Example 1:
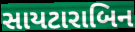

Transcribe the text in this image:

સાયટારાબિન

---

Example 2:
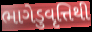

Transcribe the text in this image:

ભાગેડુવૃત્તિથી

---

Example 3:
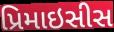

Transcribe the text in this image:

પ્રિમાઇસીસ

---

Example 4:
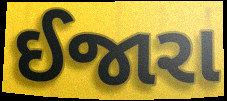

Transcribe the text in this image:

ઈજારા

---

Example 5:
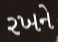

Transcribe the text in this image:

રખને